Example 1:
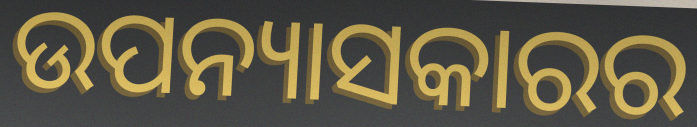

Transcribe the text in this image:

ଉପନ୍ୟାସକାରର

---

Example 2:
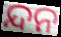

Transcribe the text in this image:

ନ୍ଦନ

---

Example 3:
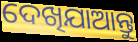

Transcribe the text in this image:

ଦେଖିଯାଆନ୍ତୁ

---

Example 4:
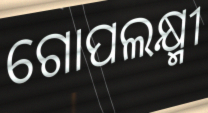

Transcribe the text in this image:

ଗୋପଲକ୍ଷ୍ମୀ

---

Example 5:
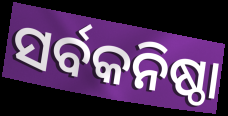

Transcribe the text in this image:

ସର୍ବକନିଷ୍ଠା